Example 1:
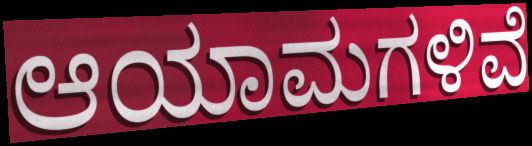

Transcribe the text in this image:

ಆಯಾಮಗಳಿವೆ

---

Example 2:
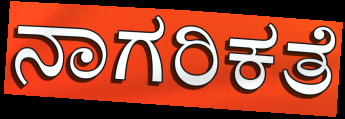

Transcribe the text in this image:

ನಾಗರಿಕತೆ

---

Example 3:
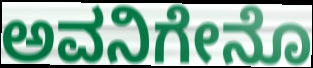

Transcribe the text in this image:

ಅವನಿಗೇನೊ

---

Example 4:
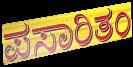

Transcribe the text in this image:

ಪಸಾರಿತಂ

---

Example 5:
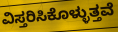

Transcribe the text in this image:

ವಿಸ್ತರಿಸಿಕೊಳ್ಳುತ್ತವೆ